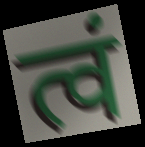
त्वं